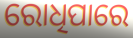
ରୋଧିପାରେ